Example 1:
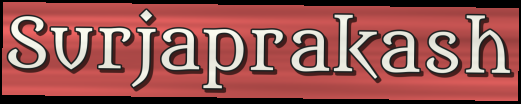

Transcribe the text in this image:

Surjaprakash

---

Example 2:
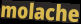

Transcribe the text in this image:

molache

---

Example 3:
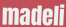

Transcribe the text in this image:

madeli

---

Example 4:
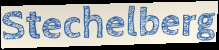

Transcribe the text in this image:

Stechelberg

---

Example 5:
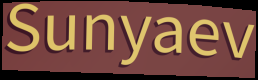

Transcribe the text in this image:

Sunyaev